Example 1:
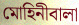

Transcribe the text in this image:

মোহিনীবালা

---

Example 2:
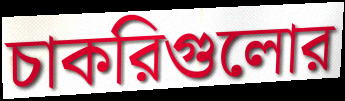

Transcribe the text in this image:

চাকরিগুলোর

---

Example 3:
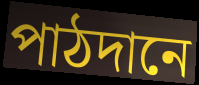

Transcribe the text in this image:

পাঠদানে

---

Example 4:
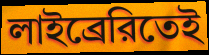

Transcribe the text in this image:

লাইব্রেরিতেই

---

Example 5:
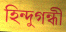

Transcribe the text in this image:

হিন্দুগন্ধী